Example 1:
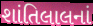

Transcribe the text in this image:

શાંતિલાલનાં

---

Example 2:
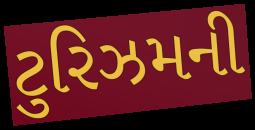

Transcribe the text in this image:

ટુરિઝમની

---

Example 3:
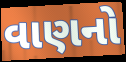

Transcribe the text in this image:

વાણનો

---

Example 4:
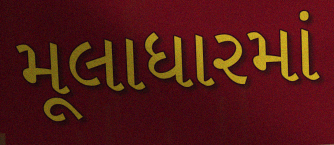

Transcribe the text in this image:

મૂલાધારમાં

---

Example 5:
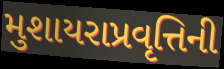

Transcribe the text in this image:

મુશાયરાપ્રવૃત્તિની